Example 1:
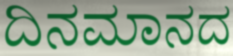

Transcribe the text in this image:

ದಿನಮಾನದ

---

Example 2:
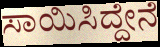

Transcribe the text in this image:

ಸಾಯಿಸಿದ್ದೇನೆ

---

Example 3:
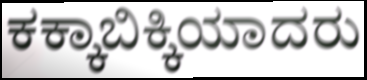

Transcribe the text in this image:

ಕಕ್ಕಾಬಿಕ್ಕಿಯಾದರು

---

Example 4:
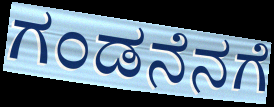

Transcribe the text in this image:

ಗಂಡನೆನಗೆ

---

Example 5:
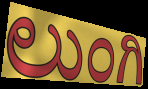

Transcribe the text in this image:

ಲುಂಗಿ